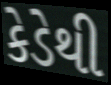
કેડેથી